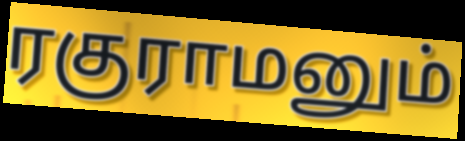
ரகுராமனும்